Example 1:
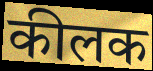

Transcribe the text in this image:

कीलक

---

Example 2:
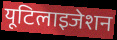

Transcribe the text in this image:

यूटिलाइजेशन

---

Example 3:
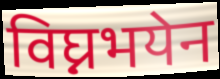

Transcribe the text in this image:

विघ्नभयेन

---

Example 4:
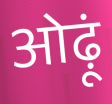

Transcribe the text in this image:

ओढ़ूं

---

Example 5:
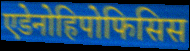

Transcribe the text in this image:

एडेनोहिपोफिसिस